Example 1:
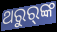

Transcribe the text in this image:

ଥରୁର୍‌ଙ୍କ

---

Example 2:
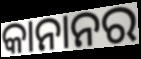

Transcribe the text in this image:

କାନାନର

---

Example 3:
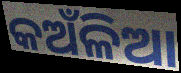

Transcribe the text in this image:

କଅଁଳିଆ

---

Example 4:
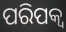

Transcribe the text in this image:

ପରିପକ୍ଵ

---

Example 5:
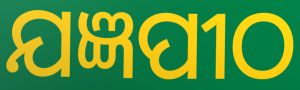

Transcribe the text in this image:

ଯଜ୍ଞପୀଠ